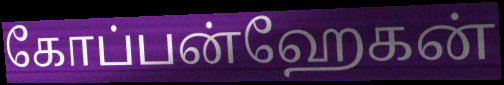
கோப்பன்ஹேகன்